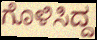
ಗೊಳಿಸಿದ್ದ